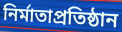
নির্মাতাপ্রতিষ্ঠান